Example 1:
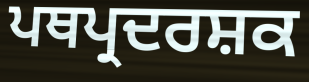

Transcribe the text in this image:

ਪਥਪ੍ਰਦਰਸ਼ਕ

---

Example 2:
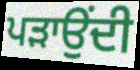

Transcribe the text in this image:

ਪੜਾਉਂਦੀ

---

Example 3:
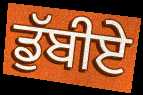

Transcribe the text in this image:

ਡੁੱਬੀਏ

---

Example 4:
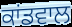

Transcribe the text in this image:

ਕਾਂਡਵਾਲ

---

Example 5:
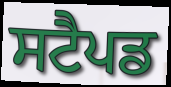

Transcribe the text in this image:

ਸਟੈਪਡ